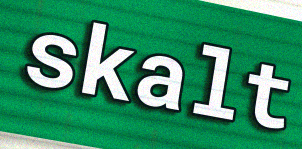
skalt